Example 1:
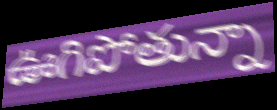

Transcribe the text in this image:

ఊగిపోతున్నా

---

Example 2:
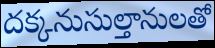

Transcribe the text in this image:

దక్కనుసుల్తానులతో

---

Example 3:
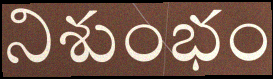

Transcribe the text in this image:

నిశుంభం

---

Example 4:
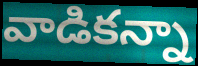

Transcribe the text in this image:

వాడికన్నా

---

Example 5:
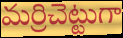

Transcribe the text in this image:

మర్రిచెట్టుగా